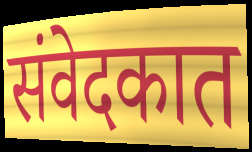
संवेदकात